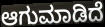
ಆಗುಮಾಡಿದೆ